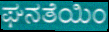
ಘನತೆಯಿಂ